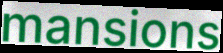
mansions